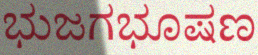
ಭುಜಗಭೂಷಣ